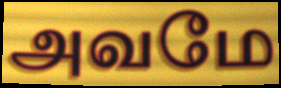
அவமே